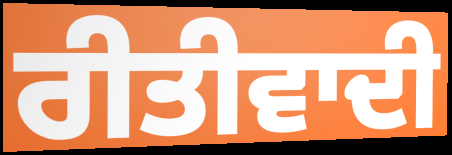
ਰੀਤੀਵਾਦੀ